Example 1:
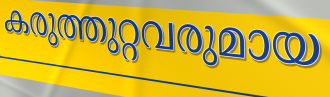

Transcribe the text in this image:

കരുത്തുറ്റവരുമായ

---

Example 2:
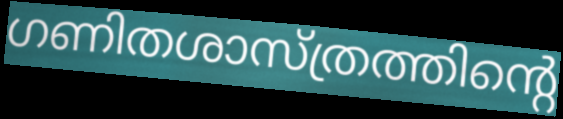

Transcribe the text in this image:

ഗണിതശാസ്ത്രത്തിന്റെ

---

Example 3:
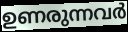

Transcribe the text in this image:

ഉണരുന്നവർ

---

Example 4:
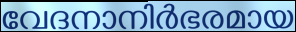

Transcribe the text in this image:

വേദനാനിർഭരമായ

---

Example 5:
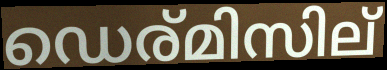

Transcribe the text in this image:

ഡെര്മിസില്